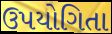
ઉપયોગિતા